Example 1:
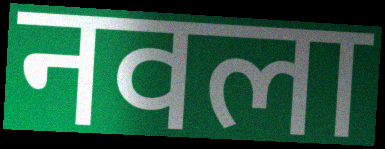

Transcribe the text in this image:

नवला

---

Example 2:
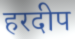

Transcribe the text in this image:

हरदीप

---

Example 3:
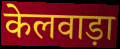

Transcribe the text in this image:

केलवाड़ा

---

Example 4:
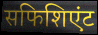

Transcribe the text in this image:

सफिशिएंट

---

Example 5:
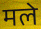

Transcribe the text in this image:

मले